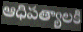
ఆధిపత్యాలకి